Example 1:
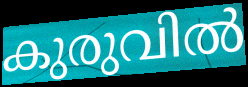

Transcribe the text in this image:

കുരുവിൽ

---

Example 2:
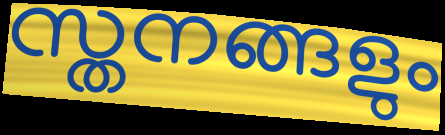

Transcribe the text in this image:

സ്തനങ്ങളും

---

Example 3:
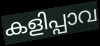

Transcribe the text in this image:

കളിപ്പാവ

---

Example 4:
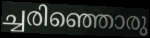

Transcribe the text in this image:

ച്ചരിഞ്ഞൊരു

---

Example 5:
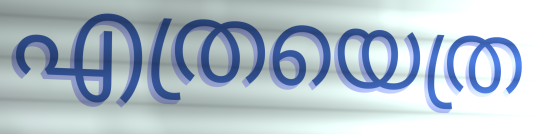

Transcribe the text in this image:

എത്രയെത്ര